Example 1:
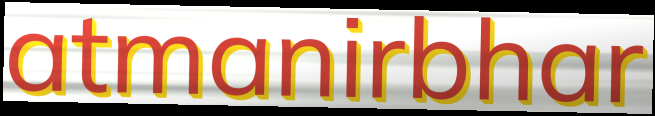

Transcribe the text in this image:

atmanirbhar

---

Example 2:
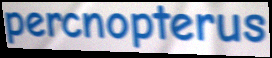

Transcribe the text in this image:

percnopterus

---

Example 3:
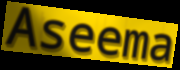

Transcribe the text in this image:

Aseema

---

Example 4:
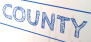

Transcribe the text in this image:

COUNTY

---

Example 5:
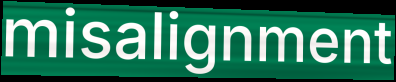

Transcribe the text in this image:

misalignment